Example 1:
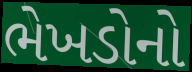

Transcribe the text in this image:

ભેખડોનો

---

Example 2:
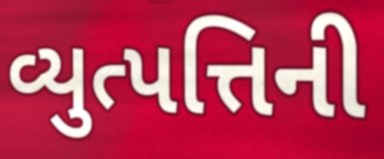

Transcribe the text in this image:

વ્યુત્પત્તિની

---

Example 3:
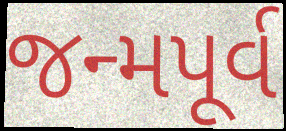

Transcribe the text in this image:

જન્મપૂર્વ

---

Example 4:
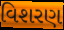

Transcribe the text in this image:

વિશરણ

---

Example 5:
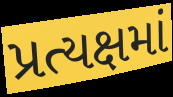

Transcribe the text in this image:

પ્રત્‍યક્ષમાં